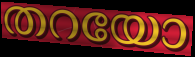
തറയോ